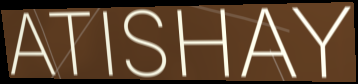
ATISHAY